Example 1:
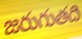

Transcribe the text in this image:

జరుగుతది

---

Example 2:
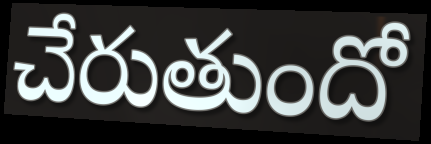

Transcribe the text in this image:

చేరుతుందో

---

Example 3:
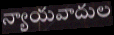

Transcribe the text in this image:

న్యాయవాదుల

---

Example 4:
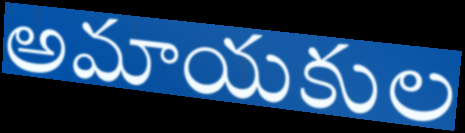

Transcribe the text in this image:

అమాయకుల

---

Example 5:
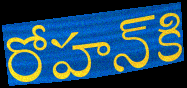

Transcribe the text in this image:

రోహన్‌కి